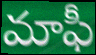
మాఫీ